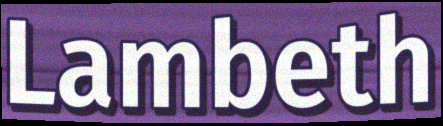
Lambeth